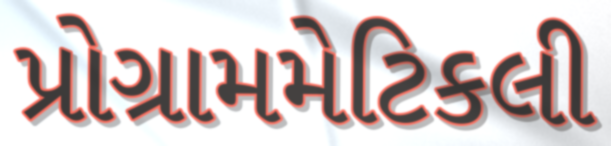
પ્રોગ્રામમેટિકલી